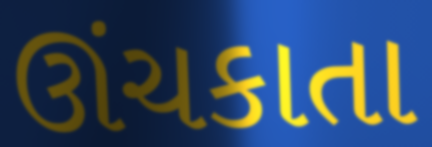
ઊંચકાતા